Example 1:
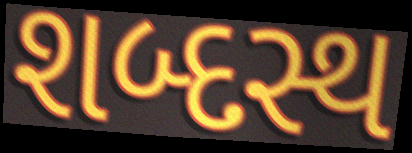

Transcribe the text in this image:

શબ્દસ્થ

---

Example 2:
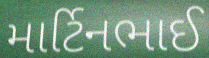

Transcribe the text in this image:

માર્ટિનભાઈ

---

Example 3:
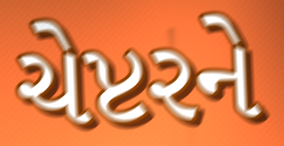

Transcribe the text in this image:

ચેપ્ટરને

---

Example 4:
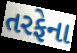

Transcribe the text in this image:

તરફેના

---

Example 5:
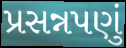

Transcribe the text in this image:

પ્રસન્નપણું